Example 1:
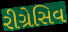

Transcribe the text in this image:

રીગ્રેસિવ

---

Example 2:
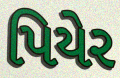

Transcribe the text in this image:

પિયેર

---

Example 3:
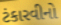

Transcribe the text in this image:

ટંકારવીનો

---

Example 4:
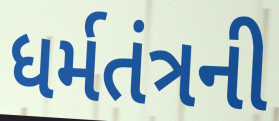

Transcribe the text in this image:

ધર્મતંત્રની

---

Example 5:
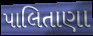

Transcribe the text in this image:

પાલિતાણા